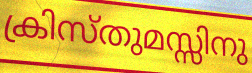
ക്രിസ്തുമസ്സിനു